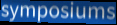
symposiums